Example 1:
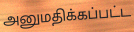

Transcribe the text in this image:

அனுமதிக்கப்பட்ட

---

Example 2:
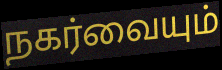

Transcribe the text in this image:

நகர்வையும்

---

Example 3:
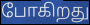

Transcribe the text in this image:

போகிறது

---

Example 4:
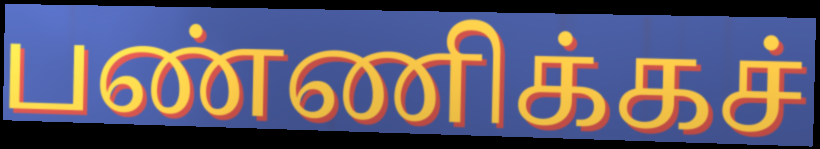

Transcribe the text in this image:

பண்ணிக்கச்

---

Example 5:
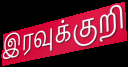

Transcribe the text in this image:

இரவுக்குறி